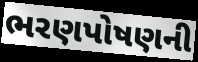
ભરણપોષણની